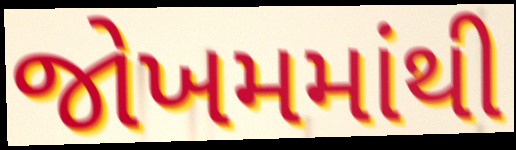
જોખમમાંથી